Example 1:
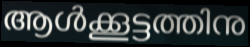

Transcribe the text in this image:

ആൾക്കൂട്ടത്തിനു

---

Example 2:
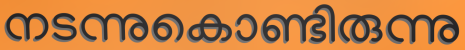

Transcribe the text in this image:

നടന്നുകൊണ്ടിരുന്നു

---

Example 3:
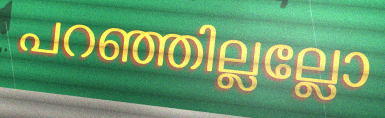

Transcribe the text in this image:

പറഞ്ഞില്ലല്ലോ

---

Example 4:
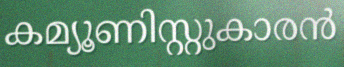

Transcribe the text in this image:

കമ്യൂണിസ്റ്റുകാരൻ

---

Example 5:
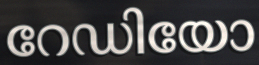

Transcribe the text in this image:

റേഡിയോ